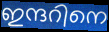
ഇന്ദറിനെ